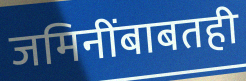
जमिनींबाबतही